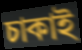
চাকাই